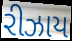
રીઝાય